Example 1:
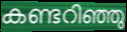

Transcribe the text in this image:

കണ്ടറിഞ്ഞു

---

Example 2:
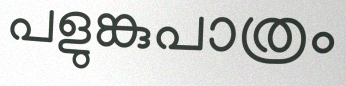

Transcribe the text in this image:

പളുങ്കുപാത്രം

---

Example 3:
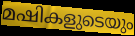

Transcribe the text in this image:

മഷികളുടെയും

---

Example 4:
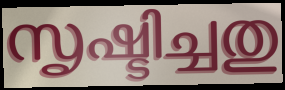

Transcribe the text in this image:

സൃഷ്ടിച്ചതു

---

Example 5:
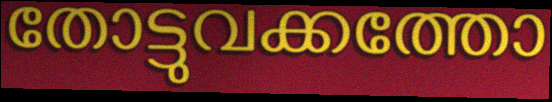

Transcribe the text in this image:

തോട്ടുവക്കത്തോ